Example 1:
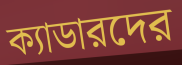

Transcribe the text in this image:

ক্যাডারদের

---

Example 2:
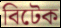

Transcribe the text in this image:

বিটেক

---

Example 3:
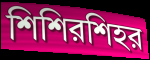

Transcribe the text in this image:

শিশিরশিহর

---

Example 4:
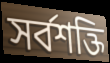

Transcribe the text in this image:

সর্বশক্তি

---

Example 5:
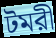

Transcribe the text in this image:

টমরী